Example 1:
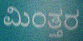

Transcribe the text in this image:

ಮಿಂತ್ತರ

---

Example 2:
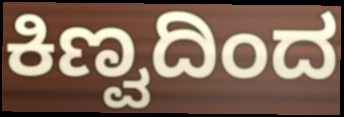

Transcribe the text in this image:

ಕಿಣ್ವದಿಂದ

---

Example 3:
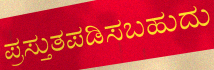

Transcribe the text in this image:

ಪ್ರಸ್ತುತಪಡಿಸಬಹುದು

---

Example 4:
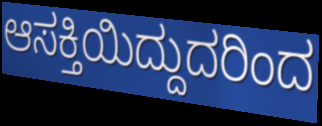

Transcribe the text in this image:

ಆಸಕ್ತಿಯಿದ್ದುದರಿಂದ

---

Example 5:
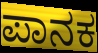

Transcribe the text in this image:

ಪಾನಕ